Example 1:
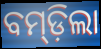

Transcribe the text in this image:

ବମ୍‍ଡ଼ିଲା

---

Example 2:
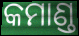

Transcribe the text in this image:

କମାଣ୍ଡ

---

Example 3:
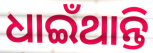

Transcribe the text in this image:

ଧାଇଁଥାନ୍ତି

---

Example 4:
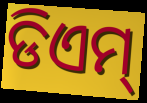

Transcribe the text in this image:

ଡିଏମ୍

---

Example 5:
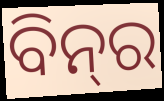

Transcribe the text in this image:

ବିନ୍‍ର